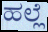
ಹಲ್ಲೆ